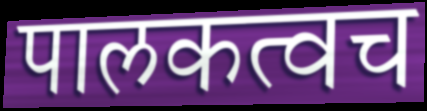
पालकत्वच